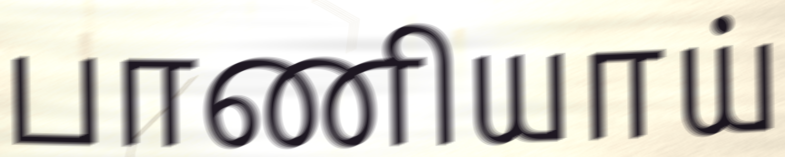
பாணியாய்